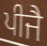
ਪੀਜੈ